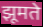
झूमते